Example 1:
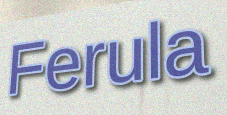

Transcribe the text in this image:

Ferula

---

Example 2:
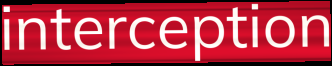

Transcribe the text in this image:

interception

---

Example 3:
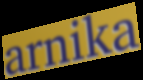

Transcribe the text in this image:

arnika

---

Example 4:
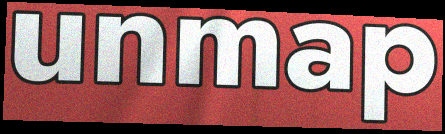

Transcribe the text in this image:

unmap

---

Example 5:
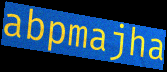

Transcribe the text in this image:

abpmajha